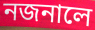
নজনালে